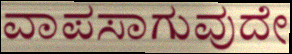
ವಾಪಸಾಗುವುದೇ